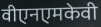
वीएनएमकेवी